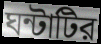
ঘন্টাটির